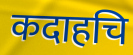
कदाहचि